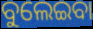
ବୁଲେଇବା